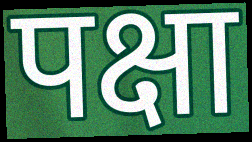
पक्षा